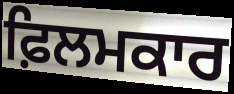
ਫ਼ਿਲਮਕਾਰ